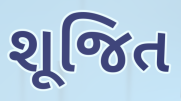
શૂજિત